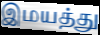
இமயத்து